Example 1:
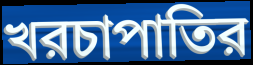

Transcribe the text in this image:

খরচাপাতির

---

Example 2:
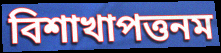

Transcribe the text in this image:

বিশাখাপত্তনম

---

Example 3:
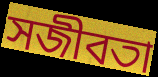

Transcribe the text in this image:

সজীবতা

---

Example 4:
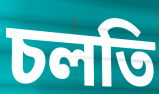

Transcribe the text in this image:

চলতি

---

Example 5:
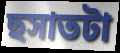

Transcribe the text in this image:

ছসাতটা